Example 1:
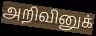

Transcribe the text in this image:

அறிவினுக்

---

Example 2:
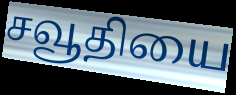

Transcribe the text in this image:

சவூதியை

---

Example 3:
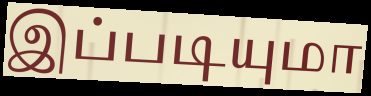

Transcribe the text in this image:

இப்படியுமா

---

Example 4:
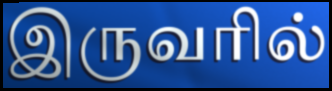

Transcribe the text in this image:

இருவரில்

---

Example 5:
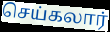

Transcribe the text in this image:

செய்கலார்